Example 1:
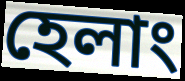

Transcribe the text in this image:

হেলাং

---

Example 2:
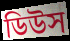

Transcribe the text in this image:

ডিউস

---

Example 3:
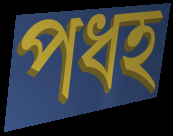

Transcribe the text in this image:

পধহ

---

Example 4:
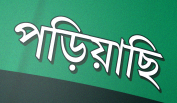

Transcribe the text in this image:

পড়িয়াছি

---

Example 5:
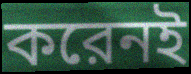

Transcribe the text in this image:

করেনই